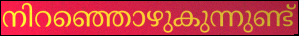
നിറഞ്ഞൊഴുകുന്നുണ്ട്